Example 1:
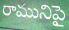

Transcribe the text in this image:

రామునిపై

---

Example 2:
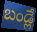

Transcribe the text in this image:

బండ్లే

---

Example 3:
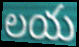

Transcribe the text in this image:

లయ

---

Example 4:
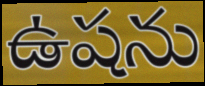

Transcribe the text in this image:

ఉషను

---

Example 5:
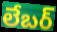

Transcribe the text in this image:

లేబర్